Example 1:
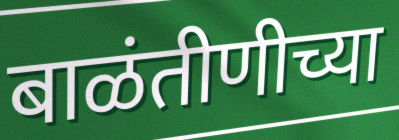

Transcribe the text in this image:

बाळंतीणीच्या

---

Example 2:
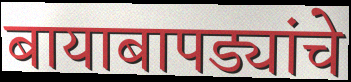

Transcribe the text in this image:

बायाबापड्यांचे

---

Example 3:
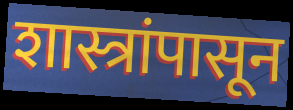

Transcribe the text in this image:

शास्त्रांपासून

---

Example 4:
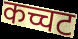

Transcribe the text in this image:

कच्चट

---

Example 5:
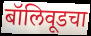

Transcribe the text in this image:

बॉलिवूडचा